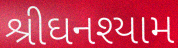
શ્રીઘનશ્યામ